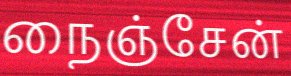
நைஞ்சேன்